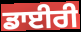
ਡਾਈਰੀ